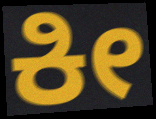
ಕೀ